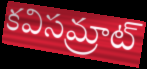
కవిసమ్రాట్